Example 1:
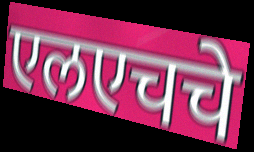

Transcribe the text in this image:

एलएचचे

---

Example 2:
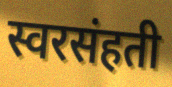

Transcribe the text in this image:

स्वरसंहती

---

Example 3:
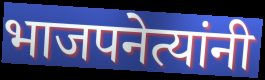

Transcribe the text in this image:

भाजपनेत्यांनी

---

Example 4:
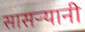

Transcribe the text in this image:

सासऱ्यानी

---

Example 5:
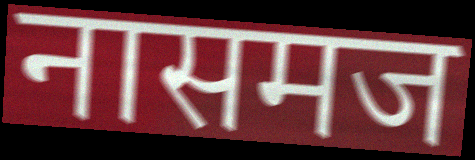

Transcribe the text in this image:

नासमज